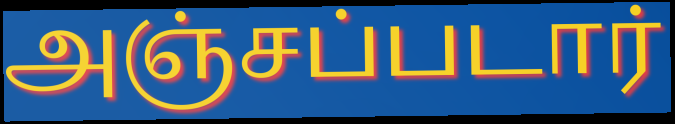
அஞ்சப்படார்